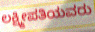
ಲಕ್ಷ್ಮೀಪತಿಯವರು